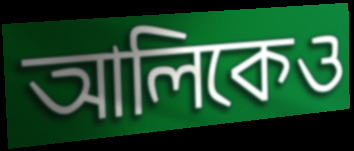
আলিকেও